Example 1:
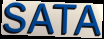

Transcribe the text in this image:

SATA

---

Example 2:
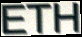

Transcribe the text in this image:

ETH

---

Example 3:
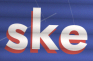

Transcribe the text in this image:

ske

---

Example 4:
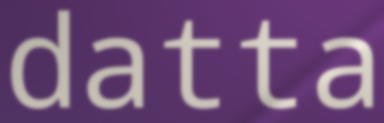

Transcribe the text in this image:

datta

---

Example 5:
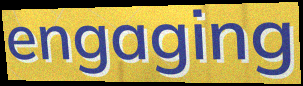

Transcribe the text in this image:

engaging